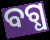
ବଗ୍ଧ